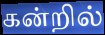
கன்றில்